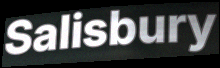
Salisbury